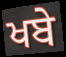
ਖਬੇ